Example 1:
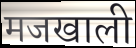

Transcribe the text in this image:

मजखाली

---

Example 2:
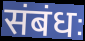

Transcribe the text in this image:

संबंधः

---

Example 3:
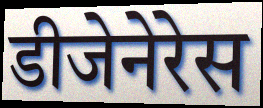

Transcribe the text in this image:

डीजेनेरेस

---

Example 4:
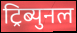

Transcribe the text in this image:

ट्रिब्युनल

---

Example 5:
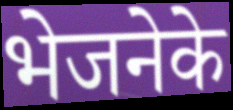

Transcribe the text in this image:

भेजनेके